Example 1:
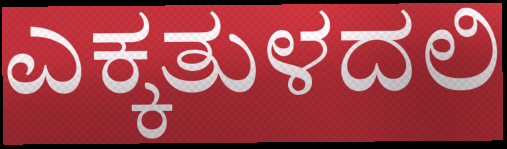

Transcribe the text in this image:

ಎಕ್ಕತುಳದಲಿ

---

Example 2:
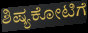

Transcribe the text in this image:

ಶಿಷ್ಯಕೋಟಿಗೆ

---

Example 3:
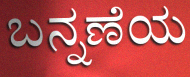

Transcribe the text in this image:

ಬನ್ನಣೆಯ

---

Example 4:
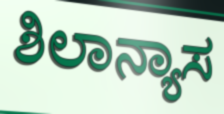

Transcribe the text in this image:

ಶಿಲಾನ್ಯಾಸ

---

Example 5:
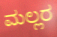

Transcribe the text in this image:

ಮಲ್ಲರ